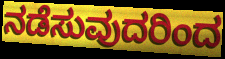
ನಡೆಸುವುದರಿಂದ